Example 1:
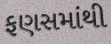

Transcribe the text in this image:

ફણસમાંથી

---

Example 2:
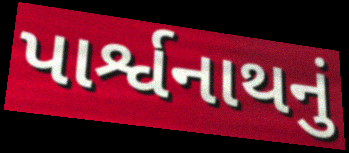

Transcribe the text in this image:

પાર્શ્વનાથનું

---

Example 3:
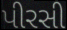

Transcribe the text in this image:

પીરસી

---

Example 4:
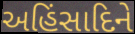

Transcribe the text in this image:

અહિંસાદિને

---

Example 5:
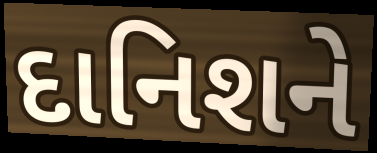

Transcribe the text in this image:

દાનિશને